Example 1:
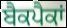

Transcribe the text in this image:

ਬੈਕਪੈਕਾਂ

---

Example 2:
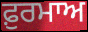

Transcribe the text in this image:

ਫ਼ੁਰਮਾਅ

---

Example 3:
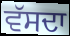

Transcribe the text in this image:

ਵੱਸਦਾ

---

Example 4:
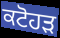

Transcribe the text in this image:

ਕਟੋਹੜ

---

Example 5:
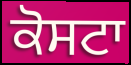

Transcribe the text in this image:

ਕੋਸਟਾ